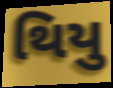
થિયુ